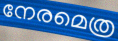
നേരമെത്ര